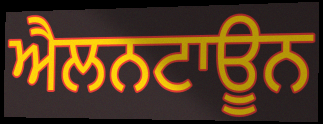
ਐਲਨਟਾਊਨ